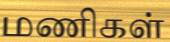
மணிகள்